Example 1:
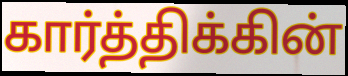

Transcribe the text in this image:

கார்த்திக்கின்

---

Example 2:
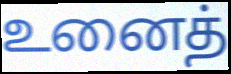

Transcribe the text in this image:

உனைத்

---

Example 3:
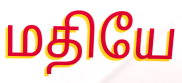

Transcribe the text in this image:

மதியே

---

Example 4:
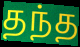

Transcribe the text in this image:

தந்த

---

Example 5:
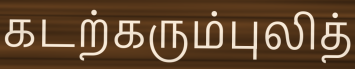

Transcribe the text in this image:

கடற்கரும்புலித்